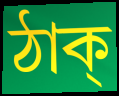
ঠাক্